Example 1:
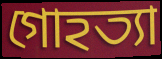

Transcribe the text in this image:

গোহত্যা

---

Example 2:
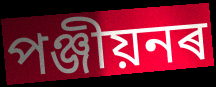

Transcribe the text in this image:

পঞ্জীয়নৰ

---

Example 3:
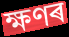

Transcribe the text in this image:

ক্ষণৰ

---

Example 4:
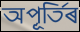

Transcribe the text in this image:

অপূৰ্তিৰ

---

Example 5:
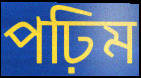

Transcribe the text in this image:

পঢ়িম